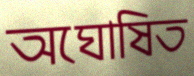
অঘোষিত